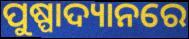
ପୁଷ୍ପାଦ୍ୟାନରେ